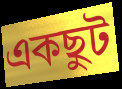
একছুট